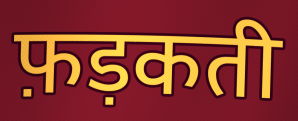
फ़ड़कती